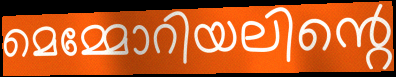
മെമ്മോറിയലിന്റെ